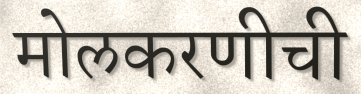
मोलकरणीची